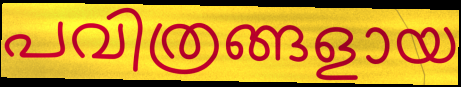
പവിത്രങ്ങളായ